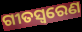
ଗୀତସ୍ବରେଣ